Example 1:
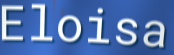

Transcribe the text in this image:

Eloisa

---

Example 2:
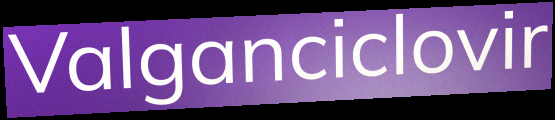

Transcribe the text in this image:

Valganciclovir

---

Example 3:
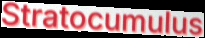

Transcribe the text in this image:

Stratocumulus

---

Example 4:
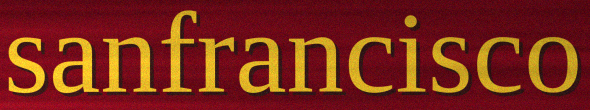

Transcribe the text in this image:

sanfrancisco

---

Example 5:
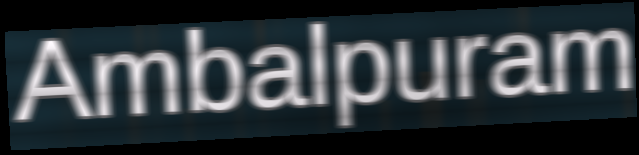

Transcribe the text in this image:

Ambalpuram